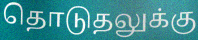
தொடுதலுக்கு